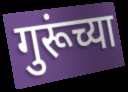
गुरूंच्या